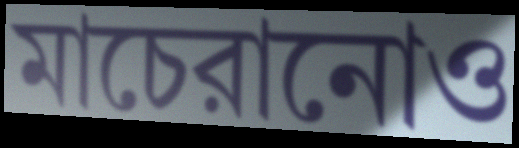
মাচেরানোও